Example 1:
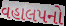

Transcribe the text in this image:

વહાલપનો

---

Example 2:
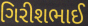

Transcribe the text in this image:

ગિરીશભાઈ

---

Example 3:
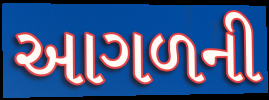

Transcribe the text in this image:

આગળની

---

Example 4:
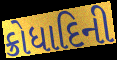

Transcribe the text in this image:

ક્રોધાદિની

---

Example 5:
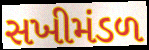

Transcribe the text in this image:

સખીમંડળ